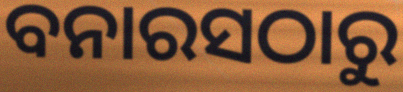
ବନାରସଠାରୁ